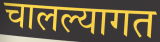
चालल्यागत